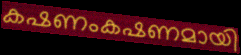
കഷണംകഷണമായി